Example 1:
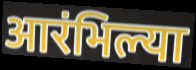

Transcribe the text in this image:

आरंभिल्या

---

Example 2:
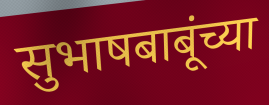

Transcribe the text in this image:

सुभाषबाबूंच्या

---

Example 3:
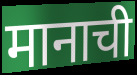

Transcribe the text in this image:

मानाची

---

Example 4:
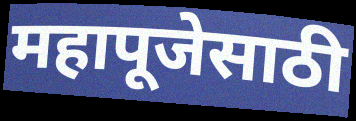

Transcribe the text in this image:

महापूजेसाठी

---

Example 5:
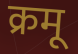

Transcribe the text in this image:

क्रमू